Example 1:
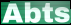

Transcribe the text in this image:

Abts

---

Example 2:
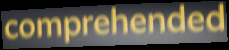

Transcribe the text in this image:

comprehended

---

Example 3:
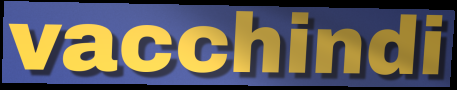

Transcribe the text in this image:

vacchindi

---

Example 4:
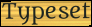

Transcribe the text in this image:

Typeset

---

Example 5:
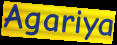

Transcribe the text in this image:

Agariya